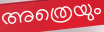
അത്രെയും